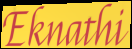
Eknathi